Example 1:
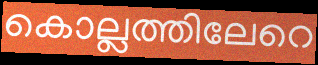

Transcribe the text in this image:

കൊല്ലത്തിലേറെ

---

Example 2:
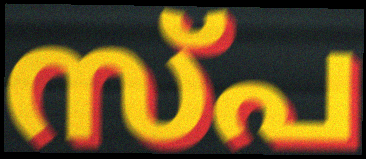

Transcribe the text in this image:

സ്പ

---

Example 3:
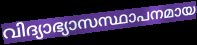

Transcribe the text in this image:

വിദ്യാഭ്യാസസ്ഥാപനമായ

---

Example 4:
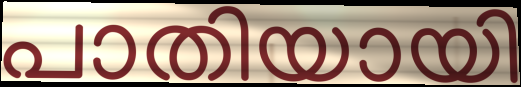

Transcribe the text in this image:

പാതിയായി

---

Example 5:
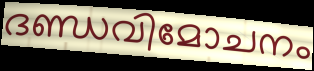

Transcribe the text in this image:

ദണ്ഡവിമോചനം